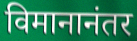
विमानानंतर